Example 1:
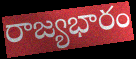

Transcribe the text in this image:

రాజ్యభారం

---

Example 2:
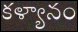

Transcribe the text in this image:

కళ్యానం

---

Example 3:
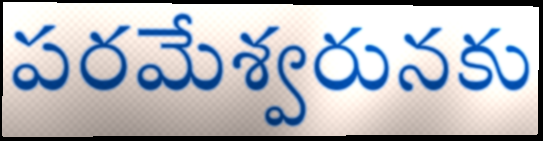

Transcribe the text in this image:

పరమేశ్వరునకు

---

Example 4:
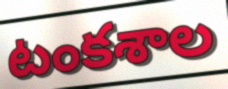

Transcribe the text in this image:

టంకశాల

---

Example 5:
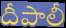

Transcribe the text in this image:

దీపాలీ